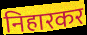
निहारकर